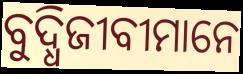
ବୁଦ୍ଧିଜୀବୀମାନେ